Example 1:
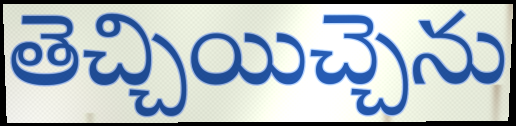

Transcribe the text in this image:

తెచ్చియిచ్చెను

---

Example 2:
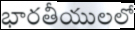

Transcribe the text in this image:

భారతీయులలో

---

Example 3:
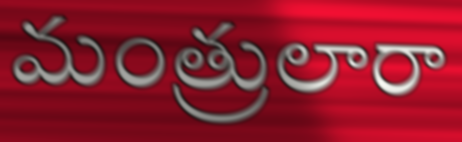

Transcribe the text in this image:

మంత్రులారా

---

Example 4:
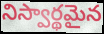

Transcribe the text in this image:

నిస్వార్థమైన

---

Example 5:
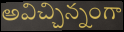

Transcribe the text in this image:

అవిచ్చిన్నంగా